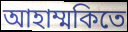
আহাম্মকিতে